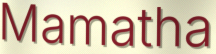
Mamatha